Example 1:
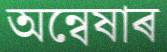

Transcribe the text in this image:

অন্বেষাৰ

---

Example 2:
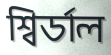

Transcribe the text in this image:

শ্বিৰ্ডাল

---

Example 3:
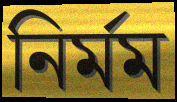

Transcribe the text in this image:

নিৰ্মম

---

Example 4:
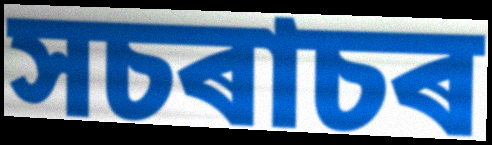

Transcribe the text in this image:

সচৰাচৰ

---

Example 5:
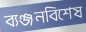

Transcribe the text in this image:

ব্যঞ্জনবিশেষ